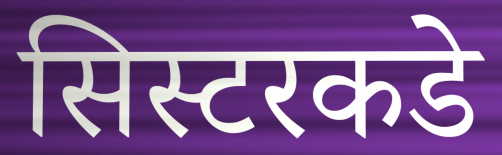
सिस्टरकडे